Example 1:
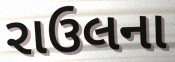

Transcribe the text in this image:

રાઉલના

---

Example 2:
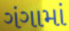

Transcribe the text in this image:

ગંગામાં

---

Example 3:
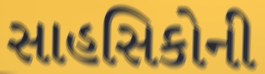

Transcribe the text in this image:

સાહસિકોની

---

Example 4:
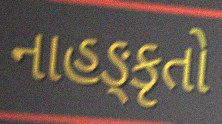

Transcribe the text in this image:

નાહઙ્કૃતો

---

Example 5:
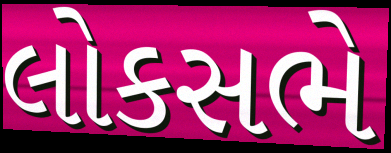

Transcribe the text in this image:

લોકસભે